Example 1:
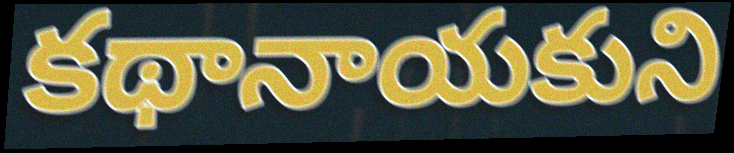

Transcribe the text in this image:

కథానాయకుని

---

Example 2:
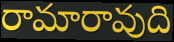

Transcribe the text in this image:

రామారావుది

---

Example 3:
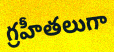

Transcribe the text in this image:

గ్రహీతలుగా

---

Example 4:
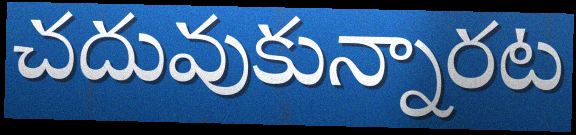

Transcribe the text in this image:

చదువుకున్నారట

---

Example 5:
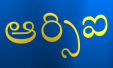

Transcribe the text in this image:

ఆర్సిఐ